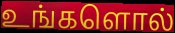
உங்களொல்